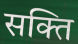
सक्ति